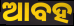
ଆବହ